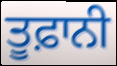
ਤੂਫ਼ਾਨੀ